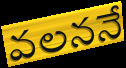
వలననే